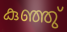
കുഞ്ഞു്